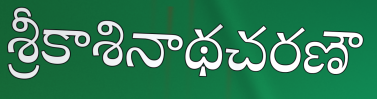
శ్రీకాశినాథచరణౌ